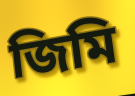
জিমি